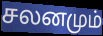
சலனமும்